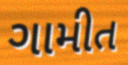
ગામીત